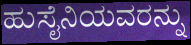
ಹುಸೈನಿಯವರನ್ನು